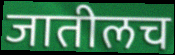
जातीलच